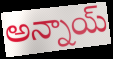
అన్నాయ్